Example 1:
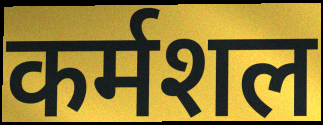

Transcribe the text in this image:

कर्मशल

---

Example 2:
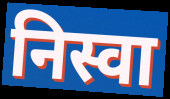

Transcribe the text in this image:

निस्वा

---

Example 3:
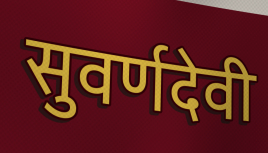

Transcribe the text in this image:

सुवर्णदेवी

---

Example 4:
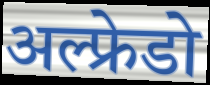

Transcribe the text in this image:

अल्फ्रेडो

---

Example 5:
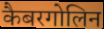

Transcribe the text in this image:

कैबरगोलिन